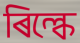
ৰিল্কে